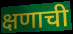
क्षणाची